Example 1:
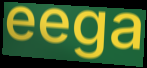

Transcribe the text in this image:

eega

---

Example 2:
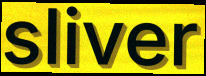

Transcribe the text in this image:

sliver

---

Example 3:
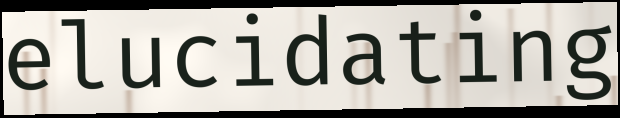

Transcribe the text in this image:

elucidating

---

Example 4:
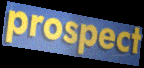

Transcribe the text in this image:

prospect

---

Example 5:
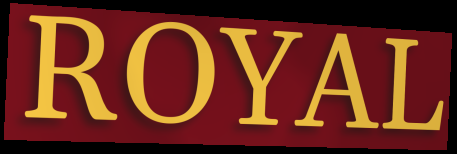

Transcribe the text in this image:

ROYAL